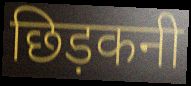
छिड़कनी